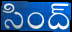
సింద్